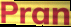
Pran